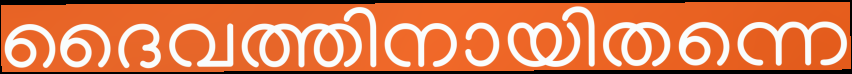
ദൈവത്തിനായിതന്നെ